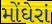
મોંઘેરાં